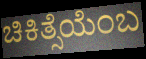
ಚಿಕಿತ್ಸೆಯೆಂಬ